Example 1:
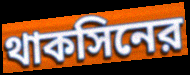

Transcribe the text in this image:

থাকসিনের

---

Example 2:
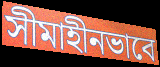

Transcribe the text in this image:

সীমাহীনভাবে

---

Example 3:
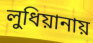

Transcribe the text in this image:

লুধিয়ানায়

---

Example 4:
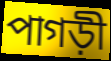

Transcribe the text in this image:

পাগড়ী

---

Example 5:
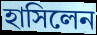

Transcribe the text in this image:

হাসিলেন